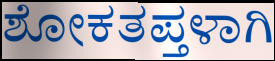
ಶೋಕತಪ್ತಳಾಗಿ